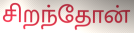
சிறந்தோன்